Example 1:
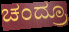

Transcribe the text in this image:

ಚಂದ್ರೂ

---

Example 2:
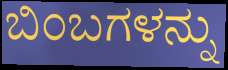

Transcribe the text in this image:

ಬಿಂಬಗಳನ್ನು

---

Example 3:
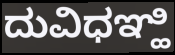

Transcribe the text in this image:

ದುವಿಧಞ್ಹಿ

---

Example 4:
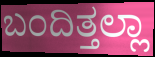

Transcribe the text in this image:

ಬಂದಿತ್ತಲ್ಲಾ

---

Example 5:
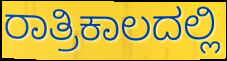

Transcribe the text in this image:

ರಾತ್ರಿಕಾಲದಲ್ಲಿ